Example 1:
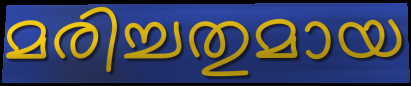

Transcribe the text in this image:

മരിച്ചതുമായ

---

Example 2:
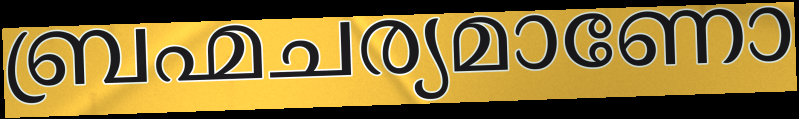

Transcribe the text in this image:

ബ്രഹ്മചര്യമാണോ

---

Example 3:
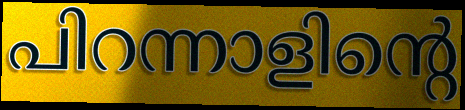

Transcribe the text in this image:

പിറന്നാളിന്റെ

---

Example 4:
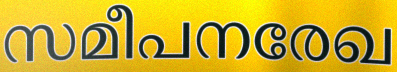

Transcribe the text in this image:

സമീപനരേഖ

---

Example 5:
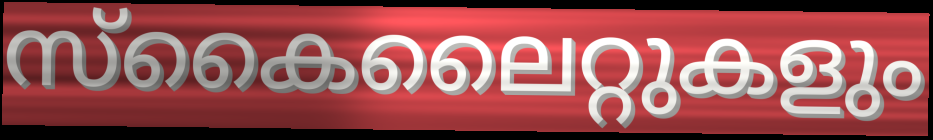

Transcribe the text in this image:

സ്കൈലൈറ്റുകളും